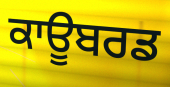
ਕਾਊਬਰਡ